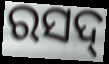
ରସଦ୍